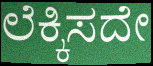
ಲೆಕ್ಕಿಸದೇ